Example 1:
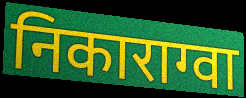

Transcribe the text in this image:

निकाराग्वा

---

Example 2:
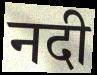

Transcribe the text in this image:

नदी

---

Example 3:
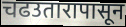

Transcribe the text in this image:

चढउतारापासून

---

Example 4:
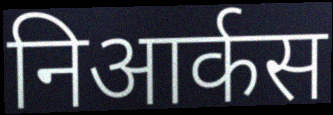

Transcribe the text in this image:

निआर्कस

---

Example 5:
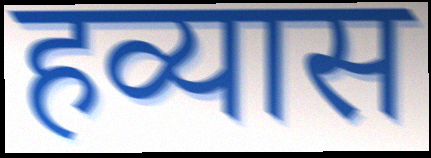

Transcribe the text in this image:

हव्यास